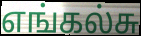
எங்கல்சு